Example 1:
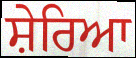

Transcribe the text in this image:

ਸ਼ੇਰਿਆ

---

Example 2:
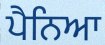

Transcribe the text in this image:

ਪੈਨਿਆ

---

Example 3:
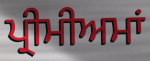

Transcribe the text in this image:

ਪ੍ਰੀਮੀਅਮਾਂ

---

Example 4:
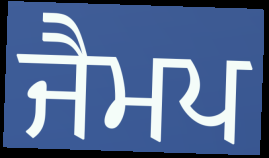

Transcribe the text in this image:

ਜੈਮਪ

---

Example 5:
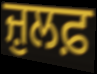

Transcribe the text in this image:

ਜ਼ੁਲਫ਼